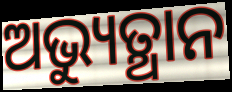
ଅଭ୍ୟୁତ୍ଥାନ